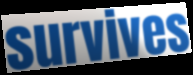
survives